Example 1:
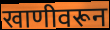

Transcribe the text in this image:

खाणीवरून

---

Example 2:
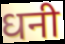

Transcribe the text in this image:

धनी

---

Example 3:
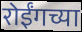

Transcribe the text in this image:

रोईंगच्या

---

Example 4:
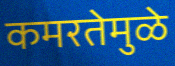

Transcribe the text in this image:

कमरतेमुळे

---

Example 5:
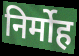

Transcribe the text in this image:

निर्मोह